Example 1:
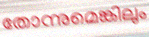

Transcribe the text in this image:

തോന്നുമെങ്കിലും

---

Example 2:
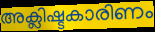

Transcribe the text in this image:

അക്ലിഷ്ടകാരിണം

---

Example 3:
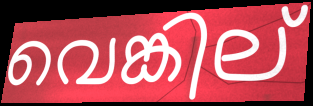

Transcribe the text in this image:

വെങ്കില്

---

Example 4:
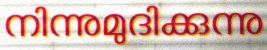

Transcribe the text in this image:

നിന്നുമുദിക്കുന്നു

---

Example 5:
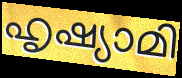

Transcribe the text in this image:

ഹൃഷ്യാമി